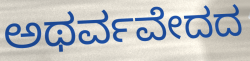
ಅಥರ್ವವೇದದ